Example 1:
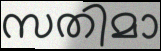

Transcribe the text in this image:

സതിമാ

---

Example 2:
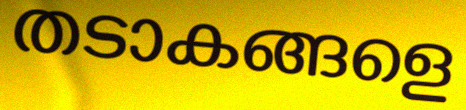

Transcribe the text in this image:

തടാകങ്ങളെ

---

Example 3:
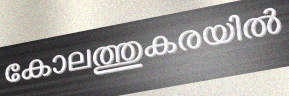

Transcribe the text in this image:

കോലത്തുകരയിൽ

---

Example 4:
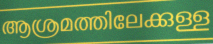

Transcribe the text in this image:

ആശ്രമത്തിലേക്കുള്ള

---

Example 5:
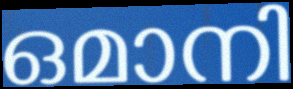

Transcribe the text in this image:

ഒമാനി